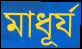
মাধূর্য